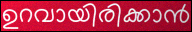
ഉറവായിരിക്കാൻ